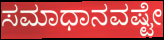
ಸಮಾಧಾನವಷ್ಟೇ